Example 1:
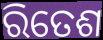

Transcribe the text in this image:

ରିତେଶ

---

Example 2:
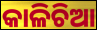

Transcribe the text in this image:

କାଳିଚିଆ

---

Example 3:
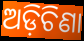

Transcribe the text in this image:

ଅଡ଼ିଚିଣା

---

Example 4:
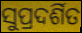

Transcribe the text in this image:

ସୁପ୍ରଦର୍ଶିତ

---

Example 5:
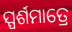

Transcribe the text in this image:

ସ୍ପର୍ଶମାତ୍ରେ